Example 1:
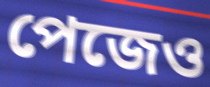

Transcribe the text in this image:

পেজেও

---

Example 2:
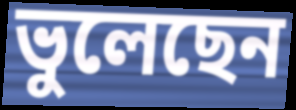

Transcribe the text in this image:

ভুলেছেন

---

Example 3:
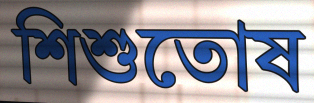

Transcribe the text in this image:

শিশুতোষ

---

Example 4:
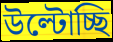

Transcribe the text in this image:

উল্টোচ্ছি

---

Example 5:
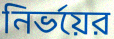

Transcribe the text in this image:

নির্ভয়ের